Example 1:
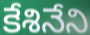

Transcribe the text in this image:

కేశినేని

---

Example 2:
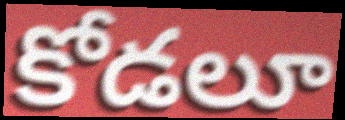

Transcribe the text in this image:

కోడలూ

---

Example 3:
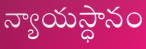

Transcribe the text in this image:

న్యాయస్ధానం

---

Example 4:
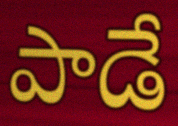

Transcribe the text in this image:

పాడే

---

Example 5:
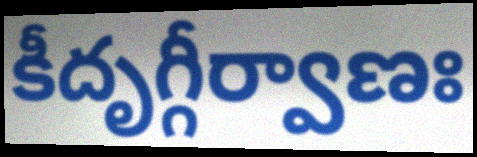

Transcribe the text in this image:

కీదృగ్గీర్వాణః